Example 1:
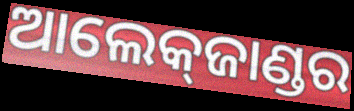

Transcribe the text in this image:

ଆଲେକ୍‌ଜାଣ୍ଡର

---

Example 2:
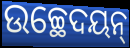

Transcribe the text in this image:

ଉଚ୍ଛେଦୟନ୍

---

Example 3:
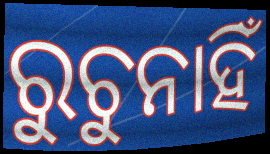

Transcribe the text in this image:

ରୁଚୁନାହିଁ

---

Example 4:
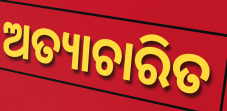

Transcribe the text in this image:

ଅତ୍ୟାଚାରିତ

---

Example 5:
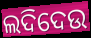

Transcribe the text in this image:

ଲଦିଦେଉ